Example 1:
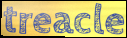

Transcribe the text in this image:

treacle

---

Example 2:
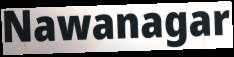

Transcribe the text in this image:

Nawanagar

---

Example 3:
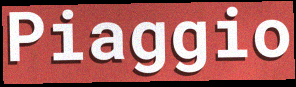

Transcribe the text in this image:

Piaggio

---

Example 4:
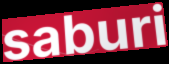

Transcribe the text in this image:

saburi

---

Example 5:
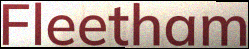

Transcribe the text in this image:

Fleetham